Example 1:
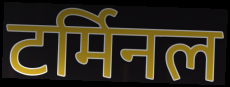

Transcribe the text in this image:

टर्मिनल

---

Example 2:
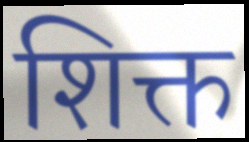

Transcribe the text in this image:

शिक्त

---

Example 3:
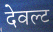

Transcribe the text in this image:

देवल्ट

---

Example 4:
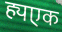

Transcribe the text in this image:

ह्यएक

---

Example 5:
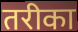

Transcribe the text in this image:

तरीका